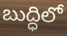
బుద్ధిలో